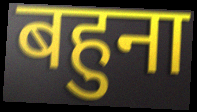
बहुना